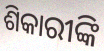
ଶିକାରୀଙ୍କି